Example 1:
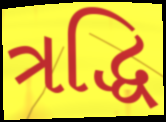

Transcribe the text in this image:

ત્રદ્ધિ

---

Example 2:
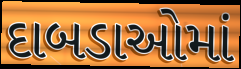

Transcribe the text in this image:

દાબડાઓમાં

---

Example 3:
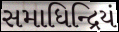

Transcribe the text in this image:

સમાધિન્દ્રિયં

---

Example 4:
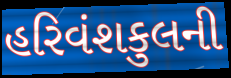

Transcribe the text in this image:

હરિવંશકુલની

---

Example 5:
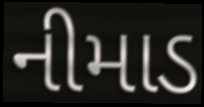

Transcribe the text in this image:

નીમાડ